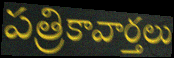
పత్రికావార్తలు